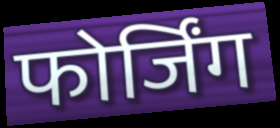
फोर्जिंग